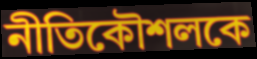
নীতিকৌশলকে